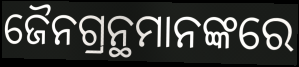
ଜୈନଗ୍ରନ୍ଥମାନଙ୍କରେ